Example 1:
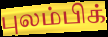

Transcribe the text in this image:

புலம்பிக்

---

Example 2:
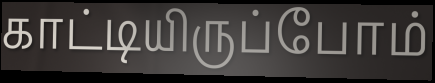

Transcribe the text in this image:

காட்டியிருப்போம்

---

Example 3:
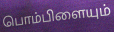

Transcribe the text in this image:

பொம்பிளையும்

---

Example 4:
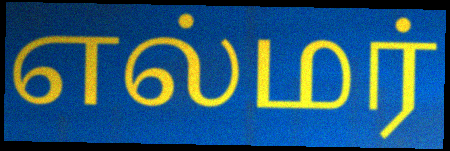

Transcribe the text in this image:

எல்மர்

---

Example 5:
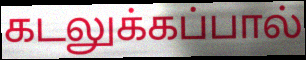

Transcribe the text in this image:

கடலுக்கப்பால்